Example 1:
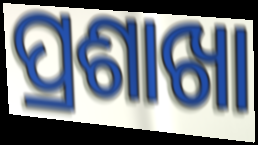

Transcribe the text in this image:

ପ୍ରଶାଖା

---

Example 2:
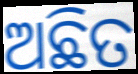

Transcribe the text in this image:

ଅଛିତ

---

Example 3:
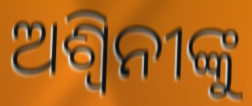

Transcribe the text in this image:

ଅଶ୍ୱିନୀଙ୍କୁ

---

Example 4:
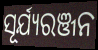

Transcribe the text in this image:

ସୂର୍ଯ୍ୟରଞ୍ଜନ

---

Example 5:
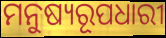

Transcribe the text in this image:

ମନୁଷ୍ୟରୂପଧାରୀ